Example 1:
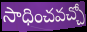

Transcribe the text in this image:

సాధించవచ్చో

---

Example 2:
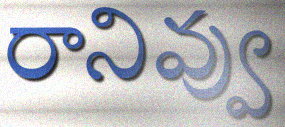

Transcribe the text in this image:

రానివ్వు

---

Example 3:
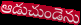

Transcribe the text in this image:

ఆడుచుండెను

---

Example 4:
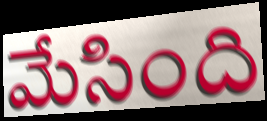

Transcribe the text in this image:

మేసింది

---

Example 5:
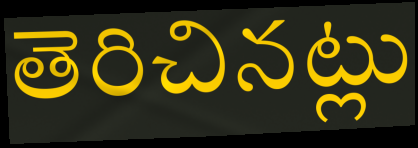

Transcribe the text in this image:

తెరిచినట్లు